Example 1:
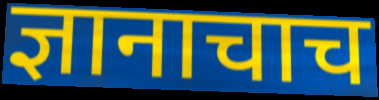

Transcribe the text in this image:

ज्ञानाचाच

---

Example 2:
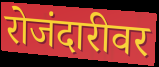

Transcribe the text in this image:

रोजंदारीवर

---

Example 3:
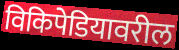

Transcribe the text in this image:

विकिपेडियावरील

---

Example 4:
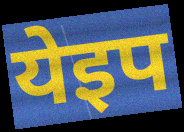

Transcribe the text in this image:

येइप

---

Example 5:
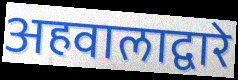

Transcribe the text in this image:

अहवालाद्वारे